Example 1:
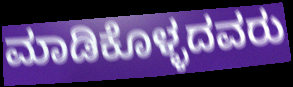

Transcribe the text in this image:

ಮಾಡಿಕೊಳ್ಳದವರು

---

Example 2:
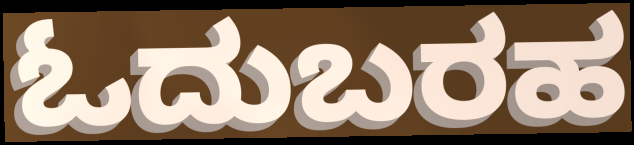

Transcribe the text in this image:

ಓದುಬರಹ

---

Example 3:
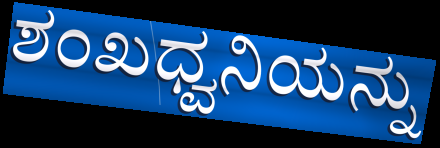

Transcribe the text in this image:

ಶಂಖಧ್ವನಿಯನ್ನು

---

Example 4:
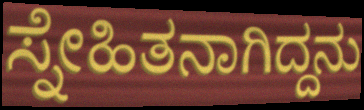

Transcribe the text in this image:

ಸ್ನೇಹಿತನಾಗಿದ್ದನು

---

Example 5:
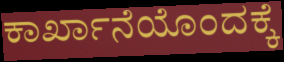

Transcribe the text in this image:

ಕಾರ್ಖಾನೆಯೊಂದಕ್ಕೆ